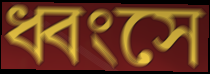
ধ্বংসে